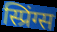
स्प्रिंग्स